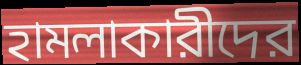
হামলাকারীদের